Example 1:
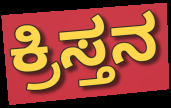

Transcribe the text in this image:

ಕ್ರಿಸ್ತನ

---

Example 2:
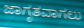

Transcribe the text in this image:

ಜಾಗೃತವಾಗಲು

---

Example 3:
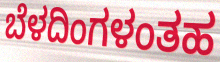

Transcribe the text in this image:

ಬೆಳದಿಂಗಳಂತಹ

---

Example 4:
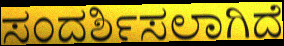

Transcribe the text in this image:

ಸಂದರ್ಶಿಸಲಾಗಿದೆ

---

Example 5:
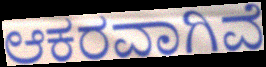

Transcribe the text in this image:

ಆಕರವಾಗಿವೆ